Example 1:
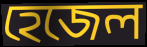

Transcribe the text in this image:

হেজেল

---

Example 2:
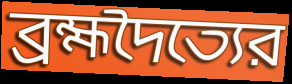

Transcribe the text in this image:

ব্রহ্মদৈত্যের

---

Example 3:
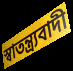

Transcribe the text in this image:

স্বাতন্ত্র্যবাদী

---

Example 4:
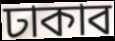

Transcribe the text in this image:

ঢাকাব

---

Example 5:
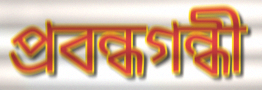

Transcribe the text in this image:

প্রবন্ধগন্ধী